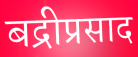
बद्रीप्रसाद